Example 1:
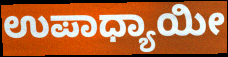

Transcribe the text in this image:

ಉಪಾಧ್ಯಾಯೀ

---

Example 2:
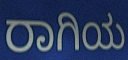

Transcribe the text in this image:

ರಾಗಿಯ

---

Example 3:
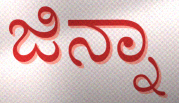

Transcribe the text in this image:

ಜಿನ್ನಾ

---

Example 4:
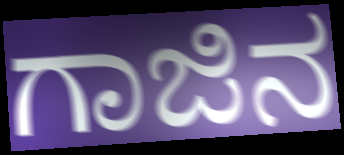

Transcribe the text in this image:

ಗಾಜಿನ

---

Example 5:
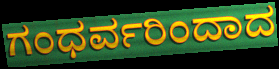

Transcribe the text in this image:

ಗಂಧರ್ವರಿಂದಾದ